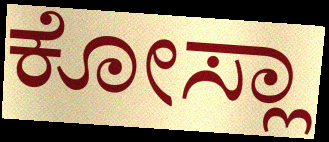
ಕೋಸ್ಲಾ